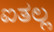
ಐತಲ್ಲ